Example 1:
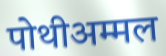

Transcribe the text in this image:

पोथीअम्मल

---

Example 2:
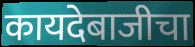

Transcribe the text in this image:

कायदेबाजीचा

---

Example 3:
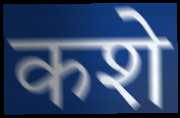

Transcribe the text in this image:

कशे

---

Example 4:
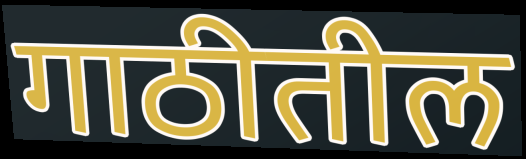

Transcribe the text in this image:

गाठीतील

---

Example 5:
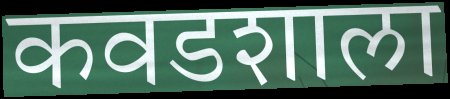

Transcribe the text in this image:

कवडशाला